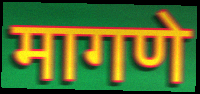
मागणे